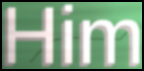
Him